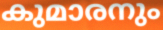
കുമാരനും